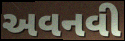
અવનવી